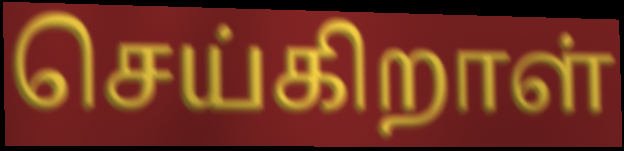
செய்கிறாள்